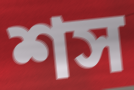
শস